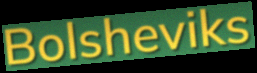
Bolsheviks